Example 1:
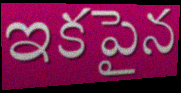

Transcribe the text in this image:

ఇకపైన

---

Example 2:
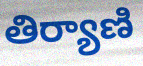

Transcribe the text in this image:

తిర్యాణి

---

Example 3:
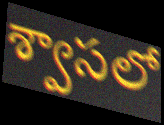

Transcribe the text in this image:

శ్వాసలో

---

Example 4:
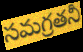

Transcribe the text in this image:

సమగ్రతనీ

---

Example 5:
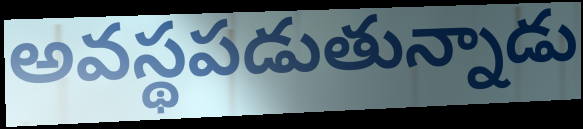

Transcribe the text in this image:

అవస్థపడుతున్నాడు